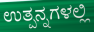
ಉತ್ಪನ್ನಗಳಲ್ಲಿ